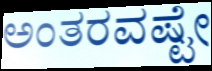
ಅಂತರವಷ್ಟೇ